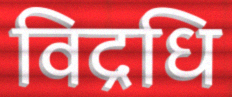
विद्रधि